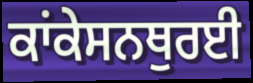
ਕਾਂਕੇਸਨਥੁਰਈ